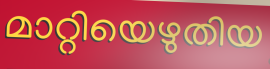
മാറ്റിയെഴുതിയ